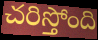
చరిస్తోంది